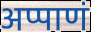
अप्पाणं